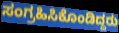
ಸಂಗ್ರಹಿಸಿಕೊಂಡಿದ್ದರು